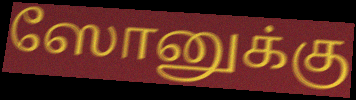
ஸோனுக்கு